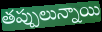
తప్పులున్నాయి